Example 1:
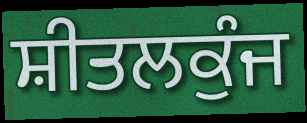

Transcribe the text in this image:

ਸ਼ੀਤਲਕੁੰਜ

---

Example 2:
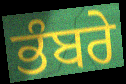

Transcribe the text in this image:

ਭੰਬਰੇ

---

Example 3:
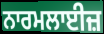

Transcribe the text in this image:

ਨਾਰਮਲਾਈਜ਼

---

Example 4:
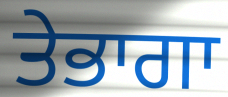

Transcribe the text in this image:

ਤੇਭਾਗਾ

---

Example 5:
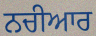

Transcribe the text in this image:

ਨਚੀਆਰ